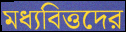
মধ্যবিত্তদের